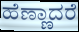
ಹೆಣ್ಣಾದರೆ